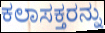
ಕಲಾಸಕ್ತರನ್ನು